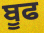
ਬੂਫ